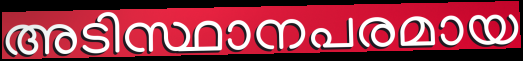
അടിസ്ഥാനപരമായ